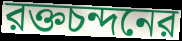
রক্তচন্দনের